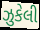
ઝુકેલી